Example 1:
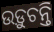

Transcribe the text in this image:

ଉଡ଼ୁଚନ୍ତି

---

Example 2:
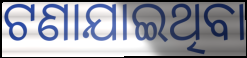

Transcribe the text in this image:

ଟଣାଯାଇଥିବା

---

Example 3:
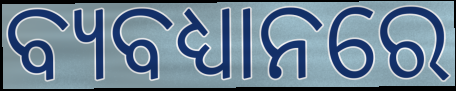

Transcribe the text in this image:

ବ୍ୟବଧ୍ୟାନରେ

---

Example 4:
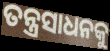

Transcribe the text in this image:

ତନ୍ତ୍ରସାଧନକୁ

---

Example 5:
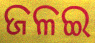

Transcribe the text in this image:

ଜଳଇ